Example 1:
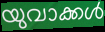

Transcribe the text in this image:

യുവാക്കൾ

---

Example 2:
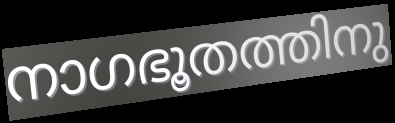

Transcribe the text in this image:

നാഗഭൂതത്തിനു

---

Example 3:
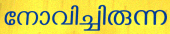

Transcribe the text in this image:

നോവിച്ചിരുന്ന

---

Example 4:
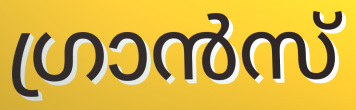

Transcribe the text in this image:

ഗ്രാൻസ്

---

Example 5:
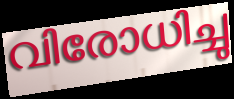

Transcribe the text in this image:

വിരോധിച്ചു